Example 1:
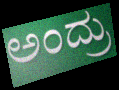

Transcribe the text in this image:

ಅಂದ್ರು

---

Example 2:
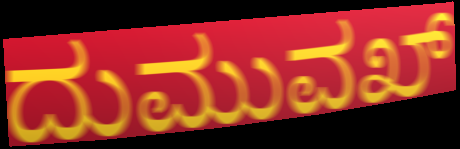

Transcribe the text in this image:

ದುಮುವಖ್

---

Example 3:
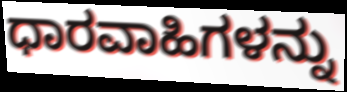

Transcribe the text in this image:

ಧಾರವಾಹಿಗಳನ್ನು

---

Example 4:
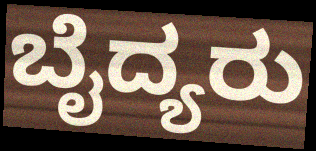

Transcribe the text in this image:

ಬೈದ್ಯರು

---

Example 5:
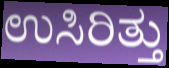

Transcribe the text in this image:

ಉಸಿರಿತ್ತು